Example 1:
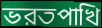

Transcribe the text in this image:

ভরতপাখি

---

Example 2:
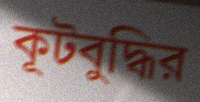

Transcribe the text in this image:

কূটবুদ্ধির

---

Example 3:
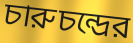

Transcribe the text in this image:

চারুচন্দ্রের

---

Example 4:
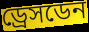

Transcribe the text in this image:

ড্রেসডেন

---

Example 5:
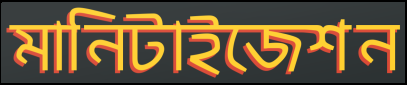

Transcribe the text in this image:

মানিটাইজেশন